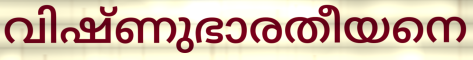
വിഷ്ണുഭാരതീയനെ